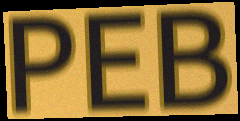
PEB